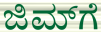
ಜಿಮ್‌ಗೆ